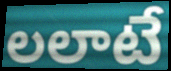
లలాటే